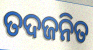
ତଦଜନିତ